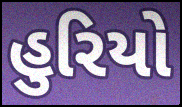
હુરિયો